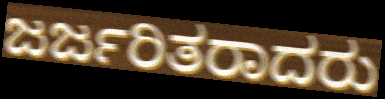
ಜರ್ಜರಿತರಾದರು